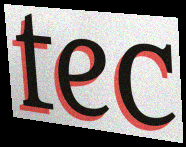
tec